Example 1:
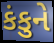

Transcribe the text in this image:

કંકુને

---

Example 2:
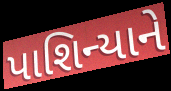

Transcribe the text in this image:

પાશિન્યાને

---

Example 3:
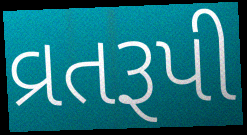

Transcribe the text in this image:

વ્રતરૂપી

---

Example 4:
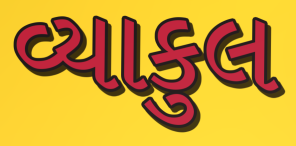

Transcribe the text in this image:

વ્યાકુલ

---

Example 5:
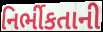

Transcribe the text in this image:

નિર્ભીકતાની